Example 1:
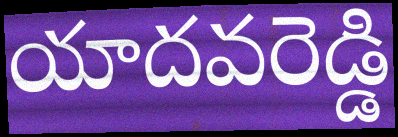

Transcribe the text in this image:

యాదవరెడ్డి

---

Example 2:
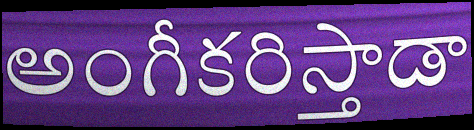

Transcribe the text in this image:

అంగీకరిస్తాడా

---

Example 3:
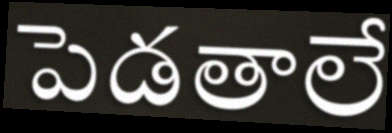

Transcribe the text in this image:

పెడతాలే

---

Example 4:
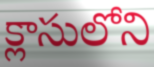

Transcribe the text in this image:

క్లాసులోని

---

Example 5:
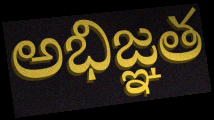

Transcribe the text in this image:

అభిజ్ఞత